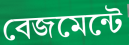
বেজমেন্টে